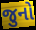
જુનો